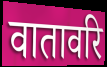
वातावरि